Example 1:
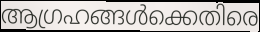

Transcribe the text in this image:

ആഗ്രഹങ്ങൾക്കെതിരെ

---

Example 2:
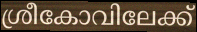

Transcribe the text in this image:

ശ്രീകോവിലേക്ക്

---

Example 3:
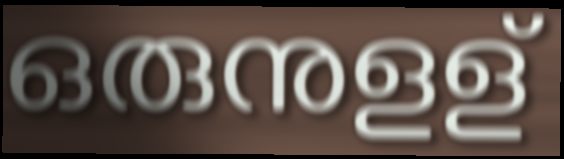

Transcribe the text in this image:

ഒരുനുളള്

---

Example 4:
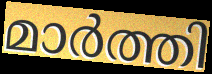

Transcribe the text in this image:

മാർത്തി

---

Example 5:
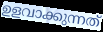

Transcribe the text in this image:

ഉളവാക്കുന്നത്